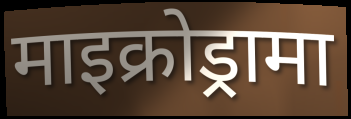
माइक्रोड्रामा